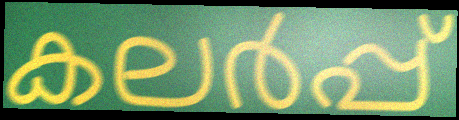
കലർപ്പ്